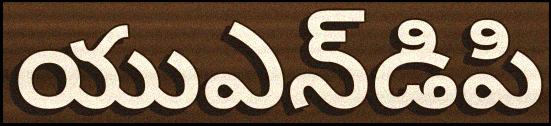
యుఎన్‌డిపి